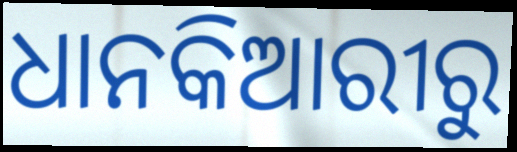
ଧାନକିଆରୀରୁ